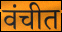
वंचीत